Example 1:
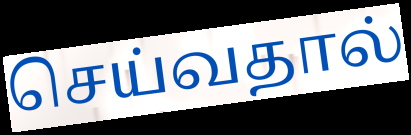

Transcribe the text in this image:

செய்வதால்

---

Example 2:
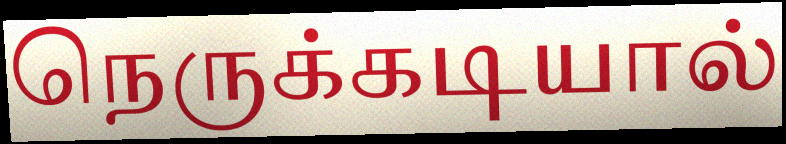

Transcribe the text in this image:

நெருக்கடியால்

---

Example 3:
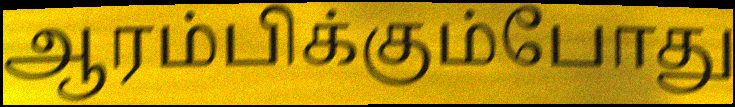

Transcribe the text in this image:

ஆரம்பிக்கும்போது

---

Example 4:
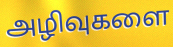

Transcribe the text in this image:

அழிவுகளை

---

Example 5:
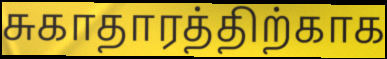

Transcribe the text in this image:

சுகாதாரத்திற்காக